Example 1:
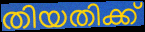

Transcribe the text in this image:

തിയതിക്ക്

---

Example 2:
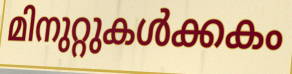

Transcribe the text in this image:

മിനുറ്റുകൾക്കകം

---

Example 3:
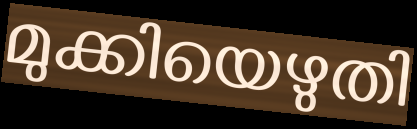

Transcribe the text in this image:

മുക്കിയെഴുതി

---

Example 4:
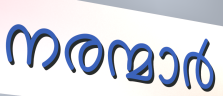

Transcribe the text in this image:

നരന്മാർ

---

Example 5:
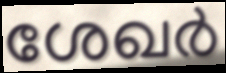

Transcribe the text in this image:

ശേഖർ